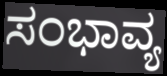
ಸಂಭಾವ್ಯ